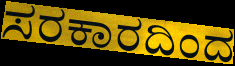
ಸರಕಾರದಿಂದ